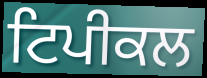
ਟਿਪੀਕਲ